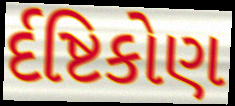
ર્દષ્ટિકોણ